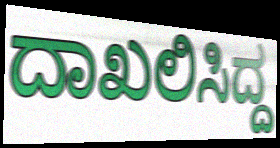
ದಾಖಲಿಸಿದ್ದ